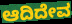
ಆದಿದೇವ